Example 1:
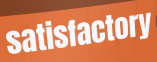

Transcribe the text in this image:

satisfactory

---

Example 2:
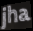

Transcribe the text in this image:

jha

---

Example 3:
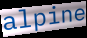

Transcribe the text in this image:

alpine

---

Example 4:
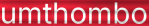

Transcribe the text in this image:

umthombo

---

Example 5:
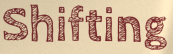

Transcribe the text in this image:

Shifting